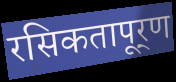
रसिकतापूर्ण